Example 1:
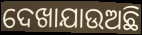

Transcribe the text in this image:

ଦେଖାଯାଉଅଛି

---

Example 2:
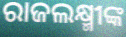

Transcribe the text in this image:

ରାଜଲକ୍ଷ୍ମୀଙ୍କ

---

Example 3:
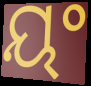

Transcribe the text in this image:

ୟଂ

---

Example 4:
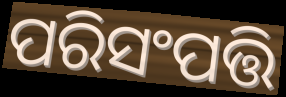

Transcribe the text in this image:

ପରିସଂପତ୍ତି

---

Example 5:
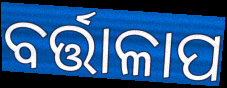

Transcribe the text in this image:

ବର୍ତ୍ତାଳାପ